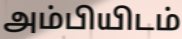
அம்பியிடம்